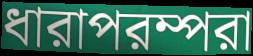
ধারাপরম্পরা